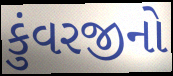
કુંવરજીનો